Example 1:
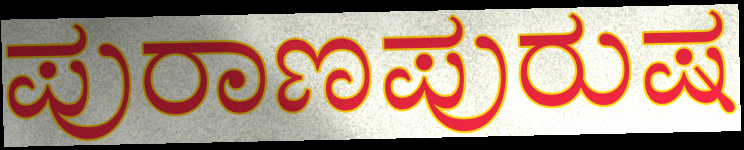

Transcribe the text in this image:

ಪುರಾಣಪುರುಷ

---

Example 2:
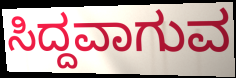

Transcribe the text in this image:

ಸಿದ್ದವಾಗುವ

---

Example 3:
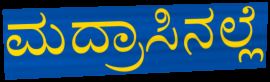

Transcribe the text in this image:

ಮದ್ರಾಸಿನಲ್ಲೆ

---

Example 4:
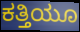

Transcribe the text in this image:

ಕತ್ತಿಯೂ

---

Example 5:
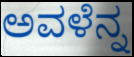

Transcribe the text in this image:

ಅವಳೆನ್ನ